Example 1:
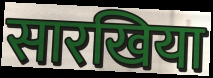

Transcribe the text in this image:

सारखिया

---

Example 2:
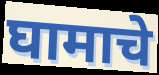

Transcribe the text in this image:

घामाचे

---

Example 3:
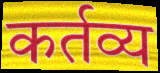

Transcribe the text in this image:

कर्तव्य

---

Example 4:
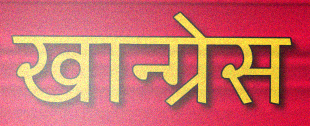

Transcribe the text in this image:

खान्ग्रेस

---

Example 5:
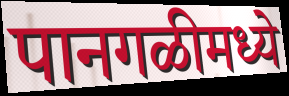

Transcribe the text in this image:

पानगळीमध्ये